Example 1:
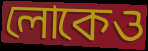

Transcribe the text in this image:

লোকেও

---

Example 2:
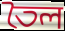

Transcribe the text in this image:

তৈল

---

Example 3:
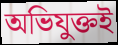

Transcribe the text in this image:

অভিযুক্তই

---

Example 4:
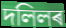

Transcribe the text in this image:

দলিলৰ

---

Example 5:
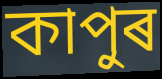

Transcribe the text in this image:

কাপুৰ